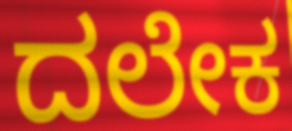
ದಲೇಕ